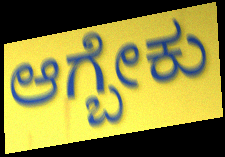
ಆಗ್ಬೇಕು